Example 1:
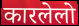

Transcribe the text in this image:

कारलेलो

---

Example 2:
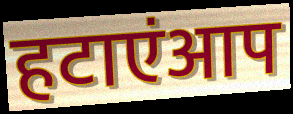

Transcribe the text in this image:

हटाएंआप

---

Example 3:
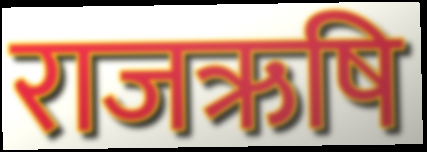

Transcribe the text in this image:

राजऋषि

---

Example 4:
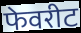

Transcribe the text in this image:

फेवरीट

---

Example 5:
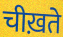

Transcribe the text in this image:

चीख़ते